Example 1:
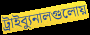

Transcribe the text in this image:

ট্রাইব্যুনালগুলোয়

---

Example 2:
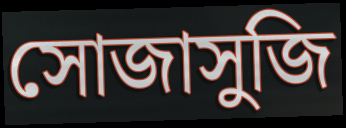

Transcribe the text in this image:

সোজাসুজি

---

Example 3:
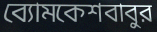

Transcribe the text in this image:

ব্যোমকেশবাবুর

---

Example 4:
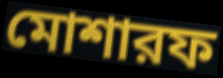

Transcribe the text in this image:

মোশারফ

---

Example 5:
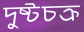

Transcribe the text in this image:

দুষ্টচক্র